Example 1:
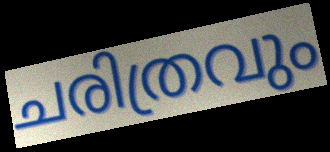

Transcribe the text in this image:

ചരിത്രവും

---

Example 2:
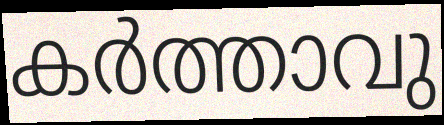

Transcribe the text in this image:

കർത്താവു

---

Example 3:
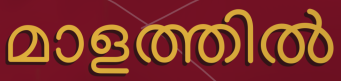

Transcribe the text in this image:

മാളത്തിൽ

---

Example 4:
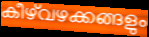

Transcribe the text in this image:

കീഴ്‌വഴക്കങ്ങളും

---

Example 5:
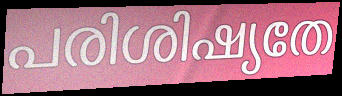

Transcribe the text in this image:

പരിശിഷ്യതേ